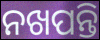
ନଖପନ୍ତି